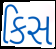
કિસ